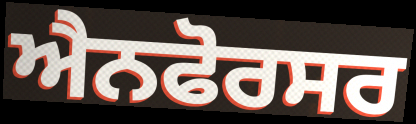
ਐਨਫੋਰਸਰ